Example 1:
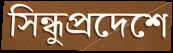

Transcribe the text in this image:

সিন্ধুপ্রদেশে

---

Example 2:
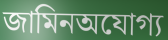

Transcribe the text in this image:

জামিনঅযোগ্য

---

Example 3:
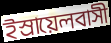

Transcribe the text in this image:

ইস্রায়েলবাসী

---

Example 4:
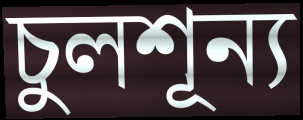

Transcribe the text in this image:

চুলশূন্য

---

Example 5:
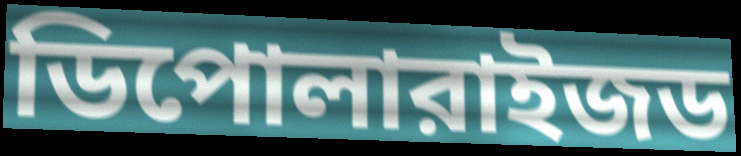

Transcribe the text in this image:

ডিপোলারাইজড